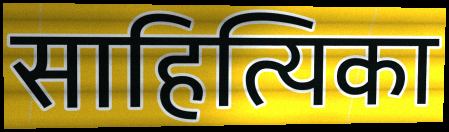
साहित्यिका